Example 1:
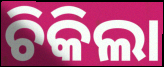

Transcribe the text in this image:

ଚିକିଲା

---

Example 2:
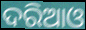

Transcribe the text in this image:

ଦରିଆଓ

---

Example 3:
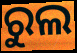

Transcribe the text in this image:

ରୁଲ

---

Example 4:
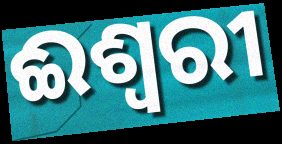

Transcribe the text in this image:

ଈଶ୍ଵରୀ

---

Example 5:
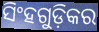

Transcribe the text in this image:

ସିଂହଗୁଡ଼ିକର